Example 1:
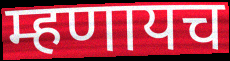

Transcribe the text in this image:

म्हणायच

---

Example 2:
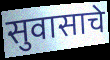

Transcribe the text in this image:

सुवासाचे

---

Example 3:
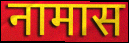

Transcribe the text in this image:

नामास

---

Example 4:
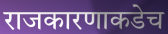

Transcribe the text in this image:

राजकारणाकडेच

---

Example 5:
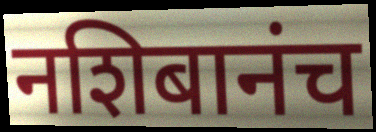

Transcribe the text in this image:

नशिबानंच